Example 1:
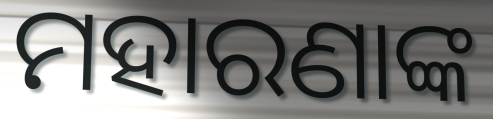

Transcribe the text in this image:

ମହାରଣାଙ୍କ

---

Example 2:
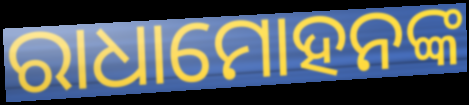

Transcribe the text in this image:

ରାଧାମୋହନଙ୍କ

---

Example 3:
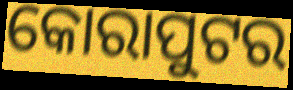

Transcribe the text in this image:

କୋରାପୁଟର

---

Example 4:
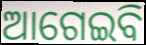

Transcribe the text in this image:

ଆଗେଇବି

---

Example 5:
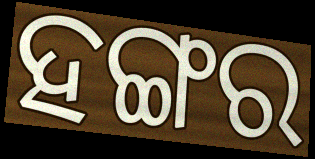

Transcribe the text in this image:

ହଙ୍ଗର